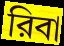
রিবা